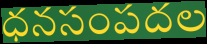
ధనసంపదల